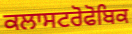
ਕਲਾਸਟਰੋਫੋਬਿਕ